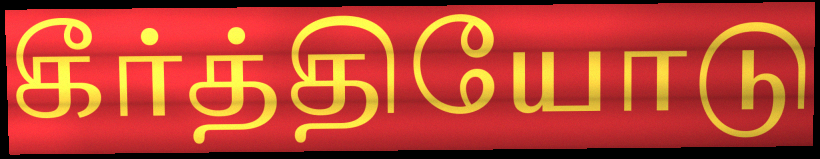
கீர்த்தியோடு